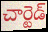
చార్టెడ్